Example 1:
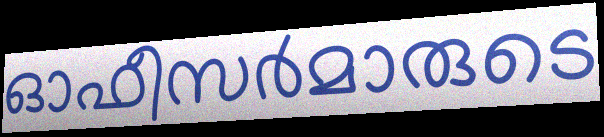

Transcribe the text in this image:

ഓഫീസർമാരുടെ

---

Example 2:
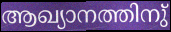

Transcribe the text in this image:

ആഖ്യാനത്തിനു്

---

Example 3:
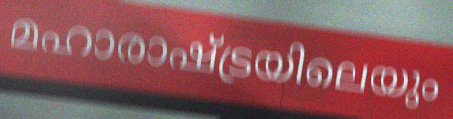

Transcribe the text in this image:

മഹാരാഷ്ട്രയിലെയും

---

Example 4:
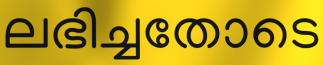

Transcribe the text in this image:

ലഭിച്ചതോടെ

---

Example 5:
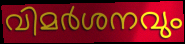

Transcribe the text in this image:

വിമർശനവും